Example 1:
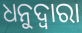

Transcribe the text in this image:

ଧନୁଦ୍ୱାରା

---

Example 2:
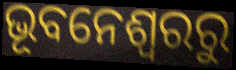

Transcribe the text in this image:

ଭୂବନେଶ୍ୱରରୁ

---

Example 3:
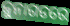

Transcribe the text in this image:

ଜୁନାଗଡରେ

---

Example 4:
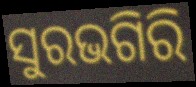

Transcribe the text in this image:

ସୁରଭଗିରି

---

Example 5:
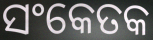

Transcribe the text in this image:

ସଂକେତକ